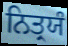
ਨਿਤ੍ਰਯੰ